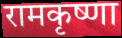
रामकृष्णा